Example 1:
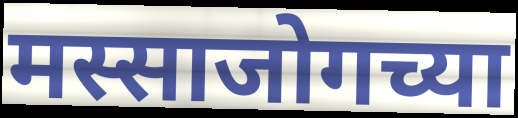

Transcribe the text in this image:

मस्साजोगच्या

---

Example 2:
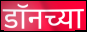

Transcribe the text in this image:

डॉनच्या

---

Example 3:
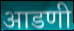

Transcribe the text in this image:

आडणी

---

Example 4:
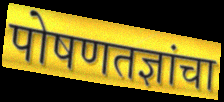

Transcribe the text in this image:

पोषणतज्ञांचा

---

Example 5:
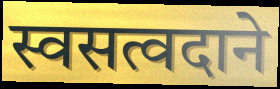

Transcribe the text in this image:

स्वसत्वदाने